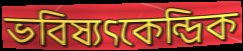
ভবিষ্যৎকেন্দ্রিক